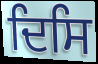
ਦਿਸਿ